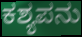
ಕಶ್ಯಪನು